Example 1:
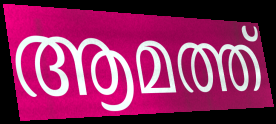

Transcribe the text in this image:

ആമത്ത്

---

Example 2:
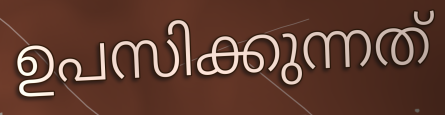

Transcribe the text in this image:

ഉപസിക്കുന്നത്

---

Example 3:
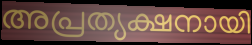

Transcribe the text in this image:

അപ്രത്യക്ഷനായി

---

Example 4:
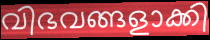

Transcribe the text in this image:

വിഭവങ്ങളാക്കി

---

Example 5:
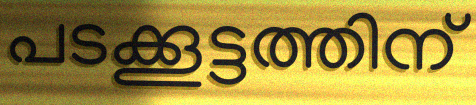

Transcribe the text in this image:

പടക്കൂട്ടത്തിന്